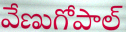
వేణుగోపాల్